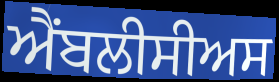
ਐਂਬਲੀਸੀਅਸ